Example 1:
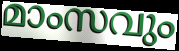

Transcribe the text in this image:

മാംസവും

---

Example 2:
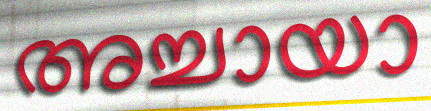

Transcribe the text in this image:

അച്ചായാ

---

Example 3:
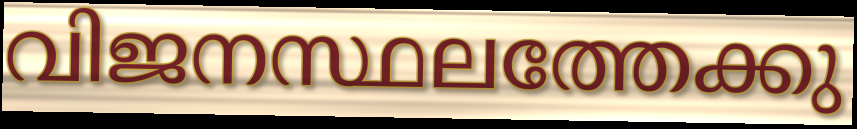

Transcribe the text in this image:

വിജനസ്ഥലത്തേക്കു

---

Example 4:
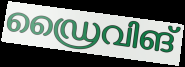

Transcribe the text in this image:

ഡ്രൈവിങ്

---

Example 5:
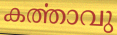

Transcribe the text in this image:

കൎത്താവു